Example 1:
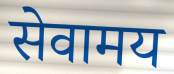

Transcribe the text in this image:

सेवामय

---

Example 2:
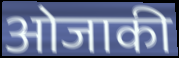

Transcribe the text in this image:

ओजाकी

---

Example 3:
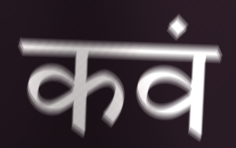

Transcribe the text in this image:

कवं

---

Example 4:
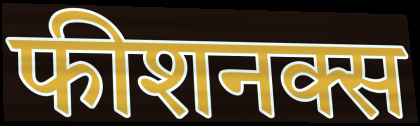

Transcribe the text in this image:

फीशनक्स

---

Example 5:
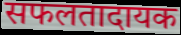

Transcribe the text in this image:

सफलतादायक